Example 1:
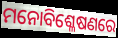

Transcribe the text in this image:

ମନୋବିଶ୍ଳେଷଣରେ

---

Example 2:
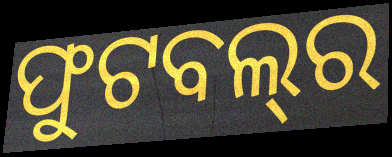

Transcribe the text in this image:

ଫୁଟବଲ୍‍ର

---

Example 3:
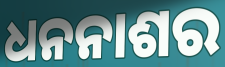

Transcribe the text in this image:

ଧନନାଶର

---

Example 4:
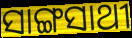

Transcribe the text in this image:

ସାଙ୍ଗସାଥୀ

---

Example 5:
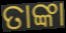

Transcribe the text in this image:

ତାଙ୍କା